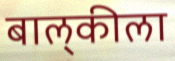
बाल्कीला